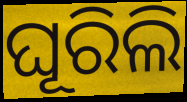
ଘୂରିଲି